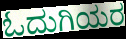
ಓದುಗಿಯರ